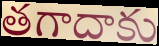
తగాదాకు